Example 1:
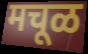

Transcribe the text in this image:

मचूळ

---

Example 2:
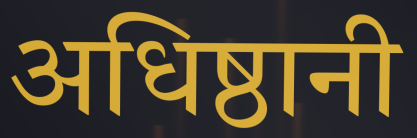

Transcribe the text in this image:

अधिष्ठानी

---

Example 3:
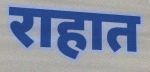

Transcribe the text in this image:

राहात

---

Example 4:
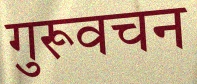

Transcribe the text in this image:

गुरूवचन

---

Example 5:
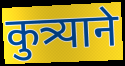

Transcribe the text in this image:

कुत्र्याने